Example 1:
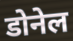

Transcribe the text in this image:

डोनेल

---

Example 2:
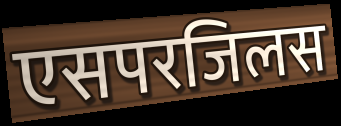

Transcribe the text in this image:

एसपरजिलस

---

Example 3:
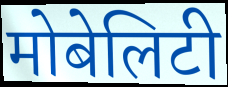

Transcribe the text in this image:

मोबेलिटी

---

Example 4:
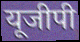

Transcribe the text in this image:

यूजीपी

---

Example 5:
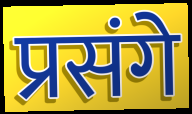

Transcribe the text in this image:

प्रसंगे